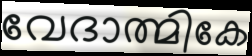
വേദാത്മികേ